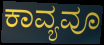
ಕಾವ್ಯವೂ